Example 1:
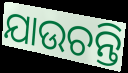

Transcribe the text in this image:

ଯାଉଚନ୍ତି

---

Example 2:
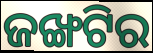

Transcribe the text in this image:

ଜଙ୍ଖଟିର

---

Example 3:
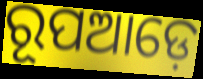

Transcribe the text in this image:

ରୂପଆଡ଼େ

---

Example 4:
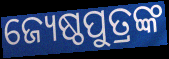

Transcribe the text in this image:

ଜ୍ୟେଷ୍ଠପୁତ୍ରଙ୍କ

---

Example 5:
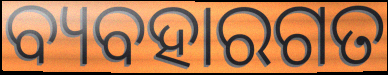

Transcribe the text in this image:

ବ୍ୟବହାରଗତ